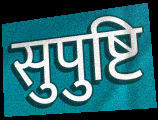
सुपुष्टि